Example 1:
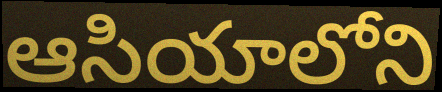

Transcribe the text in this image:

ఆసియాలోని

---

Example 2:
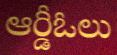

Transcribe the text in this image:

ఆర్డీఓలు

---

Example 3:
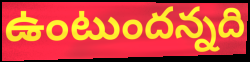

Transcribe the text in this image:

ఉంటుందన్నది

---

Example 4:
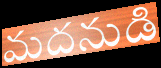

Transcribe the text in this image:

మదనుడి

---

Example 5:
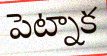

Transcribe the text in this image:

పెట్నాక